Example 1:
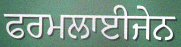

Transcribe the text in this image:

ਫਰਮਲਾਈਜੇਨ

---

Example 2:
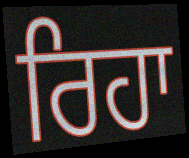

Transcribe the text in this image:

ਰਿਹਾ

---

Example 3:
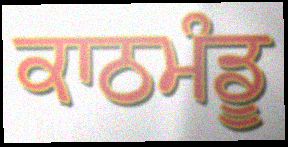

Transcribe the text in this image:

ਕਾਠਮੰਡੂ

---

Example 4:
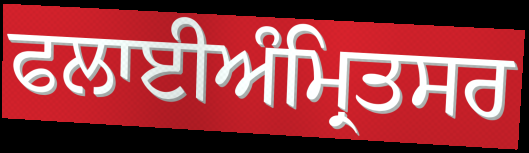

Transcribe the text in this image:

ਫਲਾਈਅੰਮ੍ਰਿਤਸਰ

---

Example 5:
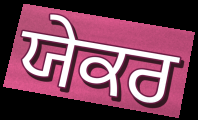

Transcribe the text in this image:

ਯੇਕਰ